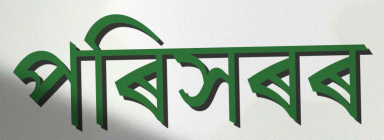
পৰিসৰৰ